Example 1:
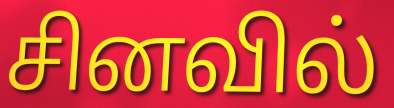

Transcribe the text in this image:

சினவில்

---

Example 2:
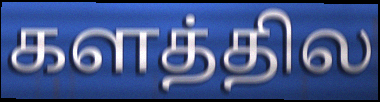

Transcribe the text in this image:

களத்தில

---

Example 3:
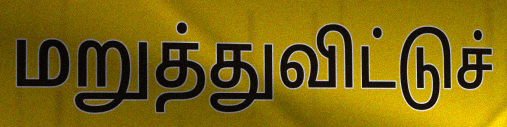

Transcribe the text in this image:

மறுத்துவிட்டுச்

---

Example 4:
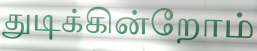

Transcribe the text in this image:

துடிக்கின்றோம்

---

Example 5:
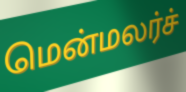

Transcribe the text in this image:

மென்மலர்ச்